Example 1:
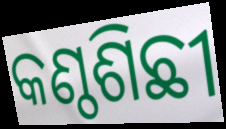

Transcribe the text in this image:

କଣ୍ଠଶିଛୀ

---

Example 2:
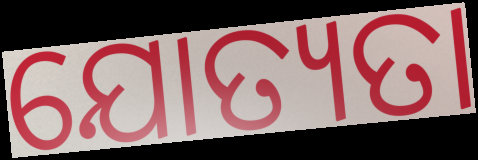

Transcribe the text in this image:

ଯୋତ୍ୟତା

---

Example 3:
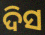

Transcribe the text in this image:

ଦିସ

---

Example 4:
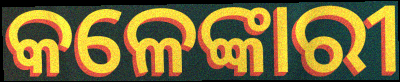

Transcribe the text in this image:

କଳେଙ୍କାରୀ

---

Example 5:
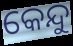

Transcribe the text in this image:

କେନ୍ଦୁ